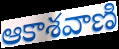
ఆకాశవాణి